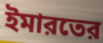
ইমারতের